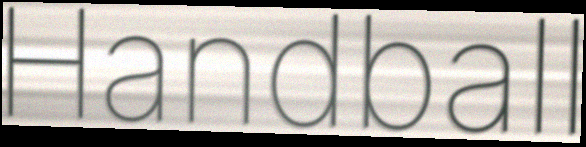
Handball